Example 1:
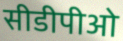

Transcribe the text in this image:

सीडीपीओ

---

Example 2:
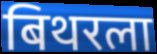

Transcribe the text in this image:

बिथरला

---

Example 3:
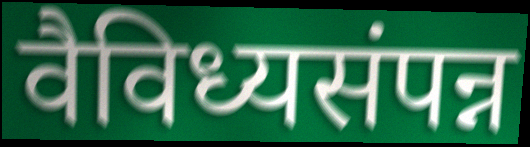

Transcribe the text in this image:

वैविध्यसंपन्न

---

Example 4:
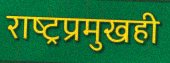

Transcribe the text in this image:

राष्ट्रप्रमुखही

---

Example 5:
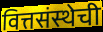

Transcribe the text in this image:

वित्तसंस्थेची